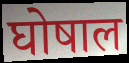
घोषाल